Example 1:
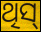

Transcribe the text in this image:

ଥିସ୍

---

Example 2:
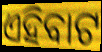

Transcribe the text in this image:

ଏହିବାଟ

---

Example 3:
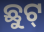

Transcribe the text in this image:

ଛୁଟ୍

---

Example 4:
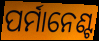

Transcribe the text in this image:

ପର୍ମାନେଣ୍ଟ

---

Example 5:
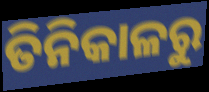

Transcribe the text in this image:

ତିନିକାଳରୁ